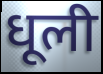
धूली